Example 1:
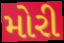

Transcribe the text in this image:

મોરી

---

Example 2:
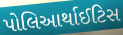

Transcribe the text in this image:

પોલિઆર્થાઈટિસ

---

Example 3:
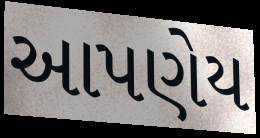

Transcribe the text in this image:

આપણેય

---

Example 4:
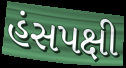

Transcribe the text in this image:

હંસપક્ષી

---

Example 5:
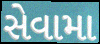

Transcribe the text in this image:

સેવામા